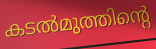
കടൽമുത്തിന്റെ